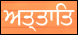
ਅਤ੍ਤਾਤਿ